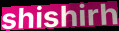
shishirh